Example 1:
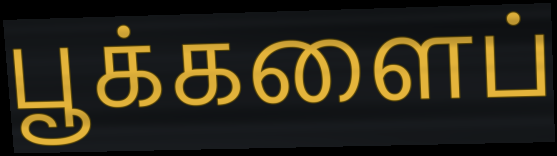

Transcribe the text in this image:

பூக்களைப்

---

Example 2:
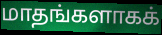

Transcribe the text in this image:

மாதங்களாகக்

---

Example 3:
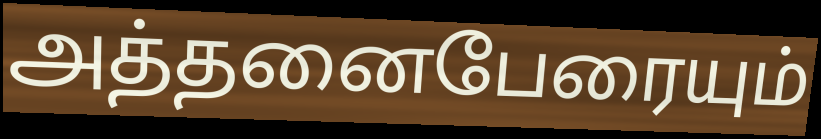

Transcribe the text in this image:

அத்தனைபேரையும்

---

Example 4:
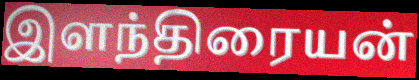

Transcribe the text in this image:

இளந்திரையன்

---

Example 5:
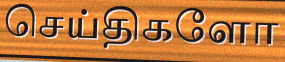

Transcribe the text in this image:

செய்திகளோ